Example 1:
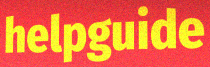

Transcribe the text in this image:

helpguide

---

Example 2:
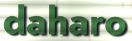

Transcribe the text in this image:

daharo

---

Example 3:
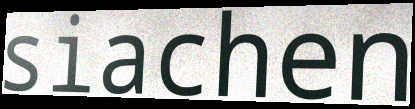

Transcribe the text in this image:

siachen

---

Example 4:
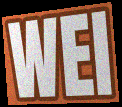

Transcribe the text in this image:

WEI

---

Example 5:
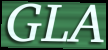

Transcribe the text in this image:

GLA